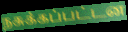
நசுக்கப்பட்டன